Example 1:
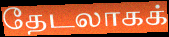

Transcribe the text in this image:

தேடலாகக்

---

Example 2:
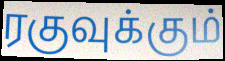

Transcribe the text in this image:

ரகுவுக்கும்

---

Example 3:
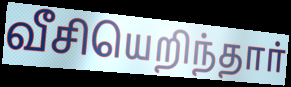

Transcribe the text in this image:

வீசியெறிந்தார்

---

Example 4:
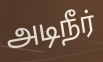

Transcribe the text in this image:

அடிநீர்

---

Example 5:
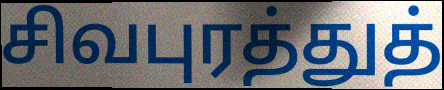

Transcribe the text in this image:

சிவபுரத்துத்